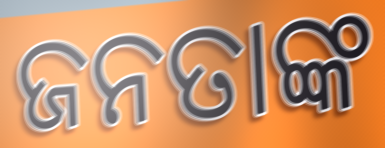
ଜନତାଙ୍କ